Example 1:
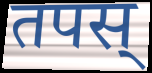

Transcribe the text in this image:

तपस्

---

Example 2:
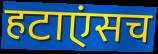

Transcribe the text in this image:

हटाएंसच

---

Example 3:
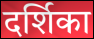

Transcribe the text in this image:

दर्शिका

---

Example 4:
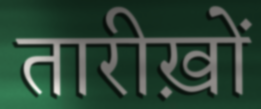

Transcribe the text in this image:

तारीख़ों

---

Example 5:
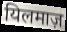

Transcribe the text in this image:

यिलमाज़